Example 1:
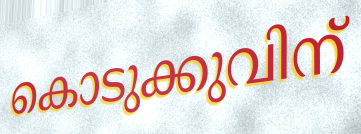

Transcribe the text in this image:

കൊടുക്കുവിന്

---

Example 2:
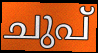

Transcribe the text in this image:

ചുപ്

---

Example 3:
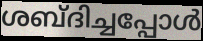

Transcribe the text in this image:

ശബ്ദിച്ചപ്പോൾ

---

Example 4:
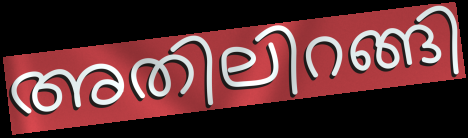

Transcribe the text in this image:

അതിലിറങ്ങി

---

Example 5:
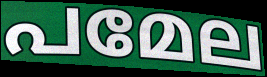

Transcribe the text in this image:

പമേല